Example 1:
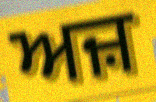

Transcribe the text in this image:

ਅਜ਼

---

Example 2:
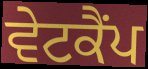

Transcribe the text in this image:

ਵੇਟਕੈਂਪ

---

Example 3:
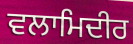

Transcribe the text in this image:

ਵਲਾਮਿਦੀਰ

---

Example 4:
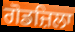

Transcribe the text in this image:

ਗੋਡਜ਼ਿਲਾ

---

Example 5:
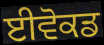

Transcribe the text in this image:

ਈਵੋਕਡ